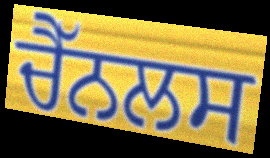
ਚੈੱਨਲਸ